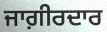
ਜਾਗ਼ੀਰਦਾਰ